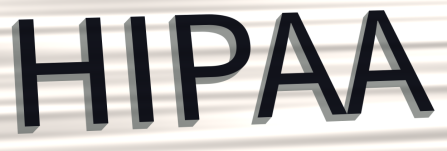
HIPAA